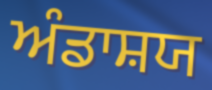
ਅੰਡਾਸ਼ਯ